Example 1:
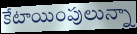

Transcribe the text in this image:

కేటాయింపులున్నా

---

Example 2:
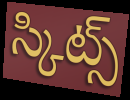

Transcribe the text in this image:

స్కిట్స్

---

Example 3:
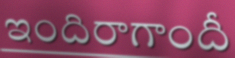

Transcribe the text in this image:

ఇందిరాగాందీ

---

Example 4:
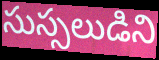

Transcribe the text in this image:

సుస్సలుడిని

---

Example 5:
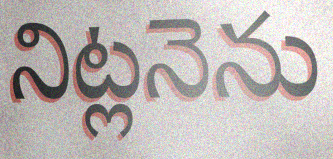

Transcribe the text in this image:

నిట్లనెను